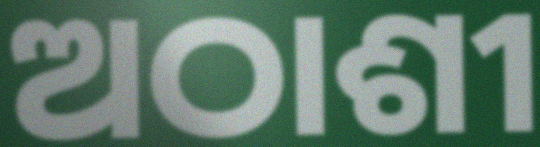
ଅଠାଶୀ